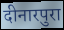
दीनारपुरा